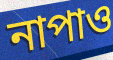
নাপাও